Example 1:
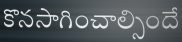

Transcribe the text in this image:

కొనసాగించాల్సిందే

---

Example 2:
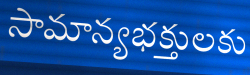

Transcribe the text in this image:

సామాన్యభక్తులకు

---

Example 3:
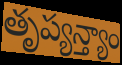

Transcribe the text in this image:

తృప్యన్త్యాం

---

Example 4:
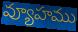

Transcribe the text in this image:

వ్యూహము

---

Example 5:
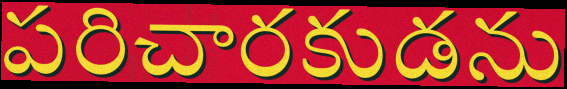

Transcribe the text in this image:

పరిచారకుడను